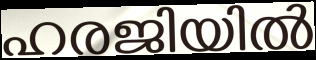
ഹരജിയിൽ